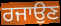
ਰਜਾਉਣ